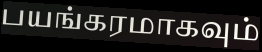
பயங்கரமாகவும்